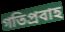
গতিপ্রবাহ